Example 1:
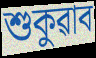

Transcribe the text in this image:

শুকুৱাব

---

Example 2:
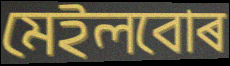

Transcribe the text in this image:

মেইলবোৰ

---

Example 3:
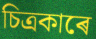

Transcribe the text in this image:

চিত্ৰকাৰে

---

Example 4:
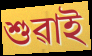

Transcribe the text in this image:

শুৱাই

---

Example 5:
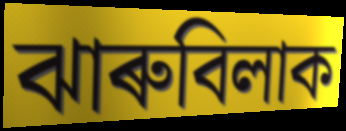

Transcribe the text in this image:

ঝাৰুবিলাক